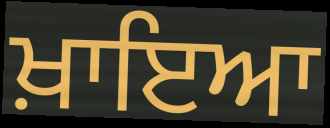
ਖ਼ਾਇਆ